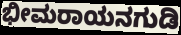
ಭೀಮರಾಯನಗುಡಿ